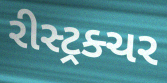
રીસ્ટ્રક્ચર